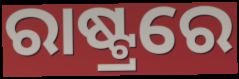
ରାଷ୍ଟ୍ରରେ